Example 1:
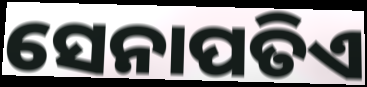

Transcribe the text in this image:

ସେନାପତିଏ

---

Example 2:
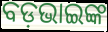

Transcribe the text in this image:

ବଡ଼ଭାଇଙ୍କ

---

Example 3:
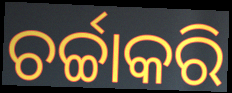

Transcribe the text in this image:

ଚର୍ଚ୍ଚାକରି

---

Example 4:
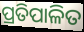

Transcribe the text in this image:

ପ୍ରତିପାଳିତ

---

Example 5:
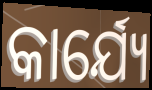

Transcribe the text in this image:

କାର୍ଯ୍ୟେ